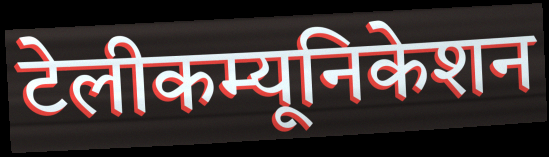
टेलीकम्‍यूनिकेशन